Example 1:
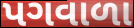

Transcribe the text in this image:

પગવાળા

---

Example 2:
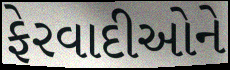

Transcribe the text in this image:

ફેરવાદીઓને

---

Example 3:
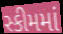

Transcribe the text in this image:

સ્કીમમાં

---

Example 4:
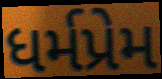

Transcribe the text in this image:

ધર્મપ્રેમ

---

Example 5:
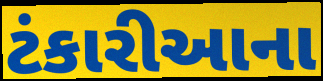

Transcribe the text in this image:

ટંકારીઆના